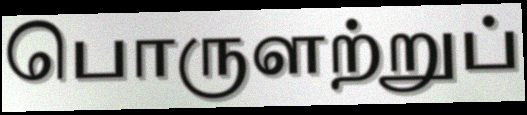
பொருளற்றுப்